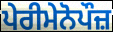
ਪੇਰੀਮੇਨੋਪੌਜ਼